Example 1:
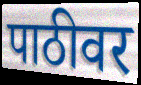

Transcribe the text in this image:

पाठीवर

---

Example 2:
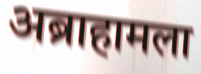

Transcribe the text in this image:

अब्राहामला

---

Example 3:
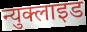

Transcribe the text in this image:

न्युक्लाइड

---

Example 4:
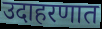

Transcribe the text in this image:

उदाहरणात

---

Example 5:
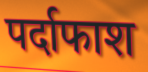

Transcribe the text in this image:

पर्दाफाश